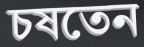
চষতেন